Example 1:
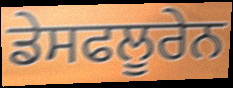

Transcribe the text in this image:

ਡੇਸਫਲੂਰੇਨ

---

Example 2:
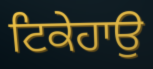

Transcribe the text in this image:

ਟਿਕੇਹਾਉ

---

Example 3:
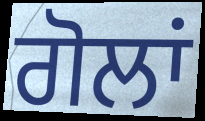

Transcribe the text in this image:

ਗੋਲਾਂ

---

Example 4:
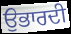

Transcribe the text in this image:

ਉਭਾਰਦੀ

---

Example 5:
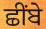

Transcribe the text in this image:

ਛੀਂਬੇ